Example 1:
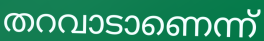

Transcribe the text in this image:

തറവാടാണെന്ന്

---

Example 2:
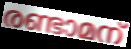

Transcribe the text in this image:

രണ്ടാമന്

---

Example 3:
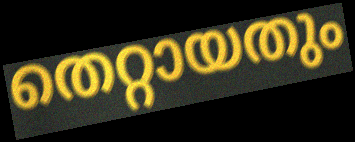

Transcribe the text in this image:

തെറ്റായതും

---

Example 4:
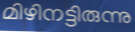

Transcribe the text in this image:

മിഴിനട്ടിരുന്നു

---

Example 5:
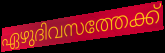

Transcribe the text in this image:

ഏഴുദിവസത്തേക്ക്